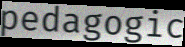
pedagogic